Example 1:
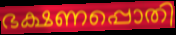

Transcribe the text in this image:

ഭക്ഷണപ്പൊതി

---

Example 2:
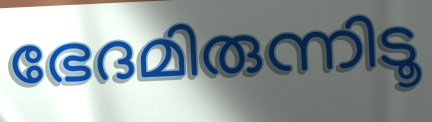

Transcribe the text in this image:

ഭേദമിരുന്നിടൂ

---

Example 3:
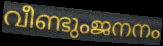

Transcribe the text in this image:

വീണ്ടുംജനനം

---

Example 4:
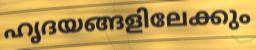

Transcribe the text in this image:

ഹൃദയങ്ങളിലേക്കും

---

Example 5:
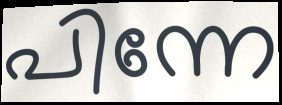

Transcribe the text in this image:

പിന്നേ